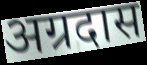
अग्रदास